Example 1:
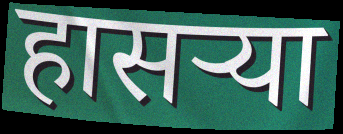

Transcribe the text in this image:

हासऱ्या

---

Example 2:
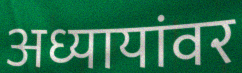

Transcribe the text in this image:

अध्यायांवर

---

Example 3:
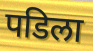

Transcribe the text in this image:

पडिला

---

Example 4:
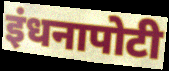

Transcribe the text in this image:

इंधनापोटी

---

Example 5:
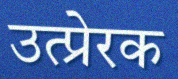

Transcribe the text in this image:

उत्प्रेरक